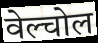
वेल्चोल